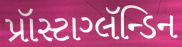
પ્રૉસ્ટાગ્લૅન્ડિન